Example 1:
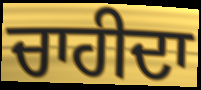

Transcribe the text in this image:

ਚਾਹੀਦਾ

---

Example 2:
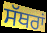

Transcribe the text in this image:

ਸੱਥਰਾਂ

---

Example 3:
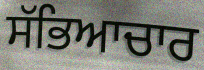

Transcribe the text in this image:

ਸੱਭਿਆਚਾਰ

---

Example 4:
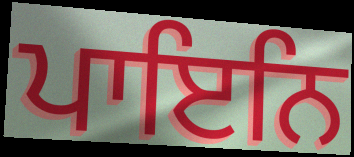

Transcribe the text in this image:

ਪਾਇਨਿ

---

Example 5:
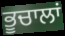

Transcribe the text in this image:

ਭੂਚਾਲਾਂ